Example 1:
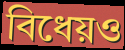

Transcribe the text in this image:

বিধেয়ও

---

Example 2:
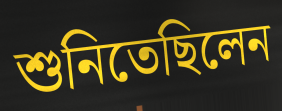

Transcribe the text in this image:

শুনিতেছিলেন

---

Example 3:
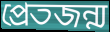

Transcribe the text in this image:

প্রেতজন্ম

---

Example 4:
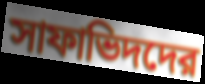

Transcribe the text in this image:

সাফাভিদদের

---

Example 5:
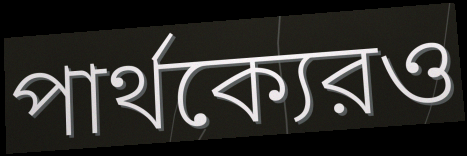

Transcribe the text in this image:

পার্থক্যেরও